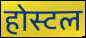
होस्टल